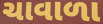
ચાવાળા